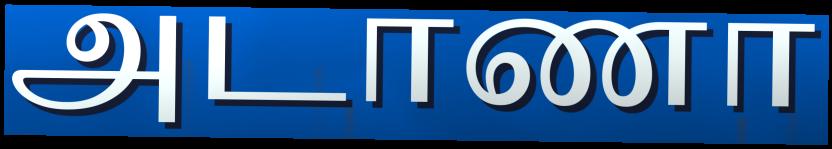
அடாணா